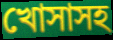
খোসাসহ